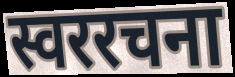
स्वररचना